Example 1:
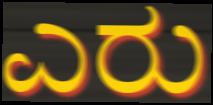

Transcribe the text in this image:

ಎರು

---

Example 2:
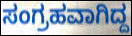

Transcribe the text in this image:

ಸಂಗ್ರಹವಾಗಿದ್ದ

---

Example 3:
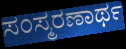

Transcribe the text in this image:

ಸಂಸ್ಮರಣಾರ್ಥ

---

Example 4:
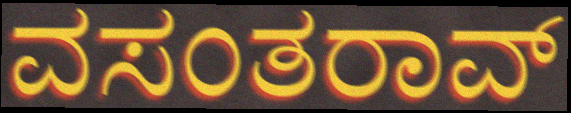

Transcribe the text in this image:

ವಸಂತರಾವ್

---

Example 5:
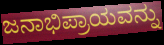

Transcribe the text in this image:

ಜನಾಭಿಪ್ರಾಯವನ್ನು